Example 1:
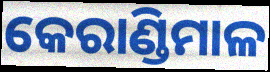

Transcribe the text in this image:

କେରାଣ୍ଡିମାଳ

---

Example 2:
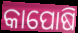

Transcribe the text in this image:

କାପୋଷି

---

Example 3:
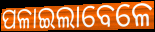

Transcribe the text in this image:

ପଳାଇଲାବେଳେ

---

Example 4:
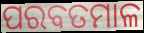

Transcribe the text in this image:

ପରବତମାଳ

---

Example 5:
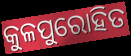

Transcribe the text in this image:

କୁଳପୁରୋହିତ